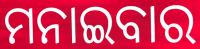
ମନାଇବାର